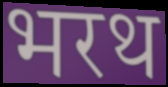
भरथ